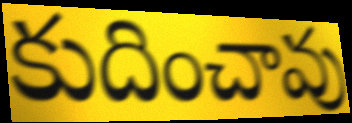
కుదించావు